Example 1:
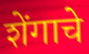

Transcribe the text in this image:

शेंगाचे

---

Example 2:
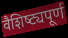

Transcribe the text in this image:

वैशिष्‍ट्यपूर्ण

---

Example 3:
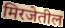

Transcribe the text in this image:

मिरजेतील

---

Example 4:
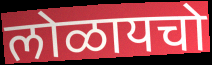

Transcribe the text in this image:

लोळायचो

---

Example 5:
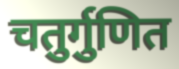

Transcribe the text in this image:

चतुर्गुणित